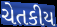
ચેતકીય